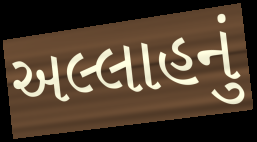
અલ્લાહનું